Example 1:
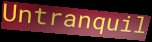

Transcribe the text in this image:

Untranquil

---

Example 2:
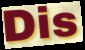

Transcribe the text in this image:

Dis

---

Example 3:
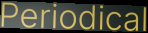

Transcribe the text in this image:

Periodical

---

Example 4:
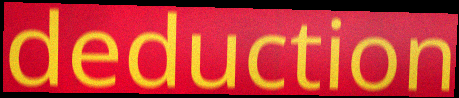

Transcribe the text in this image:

deduction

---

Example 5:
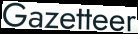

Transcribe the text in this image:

Gazetteer